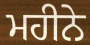
ਮਹੀਨੇ